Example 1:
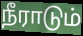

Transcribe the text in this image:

நீராடும்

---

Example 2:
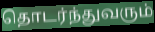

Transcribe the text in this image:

தொடர்ந்துவரும்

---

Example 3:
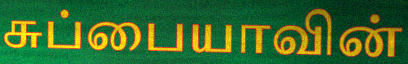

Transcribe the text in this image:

சுப்பையாவின்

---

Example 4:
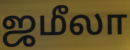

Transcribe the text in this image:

ஜமீலா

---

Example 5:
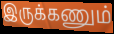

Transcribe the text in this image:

இருக்கணும்